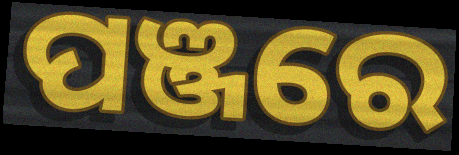
ପଞ୍ଜରେ